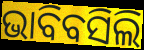
ଭାବିବସିଲି